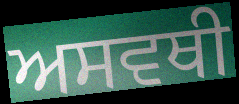
ਅਸਵਥੀ